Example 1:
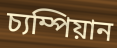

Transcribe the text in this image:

চ্যম্পিয়ান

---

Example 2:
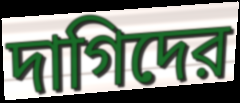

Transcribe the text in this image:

দাগিদের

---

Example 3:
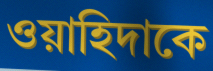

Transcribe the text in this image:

ওয়াহিদাকে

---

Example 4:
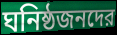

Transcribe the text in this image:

ঘনিষ্ঠজনদের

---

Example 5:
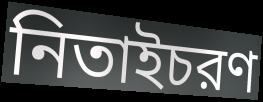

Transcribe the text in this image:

নিতাইচরণ